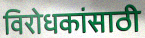
विरोधकांसाठी